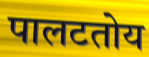
पालटतोय